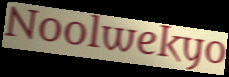
Noolwekyo